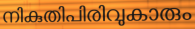
നികുതിപിരിവുകാരും